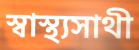
স্বাস্থ্যসাথী